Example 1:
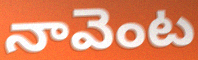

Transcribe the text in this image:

నావెంట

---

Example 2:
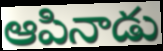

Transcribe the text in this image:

ఆపినాడు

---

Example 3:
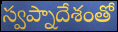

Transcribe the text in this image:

స్వప్నాదేశంతో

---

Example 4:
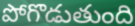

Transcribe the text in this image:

పోగొడుతుంది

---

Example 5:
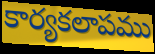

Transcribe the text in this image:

కార్యకలాపము